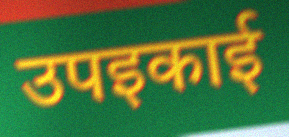
उपइकाई